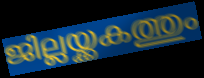
ജില്ലയ്ക്കകത്തും